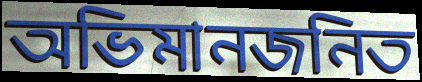
অভিমানজনিত